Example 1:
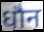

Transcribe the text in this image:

धौन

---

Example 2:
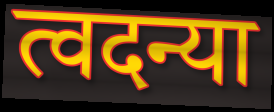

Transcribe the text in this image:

त्वदन्या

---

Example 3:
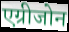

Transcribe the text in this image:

एग्रीजोन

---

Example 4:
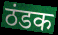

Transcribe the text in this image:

ठंडक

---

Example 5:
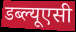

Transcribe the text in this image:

डब्ल्यूएसी